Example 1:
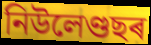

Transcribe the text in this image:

নিউলেণ্ডছৰ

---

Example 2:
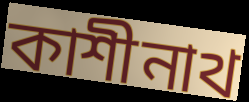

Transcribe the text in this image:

কাশীনাথ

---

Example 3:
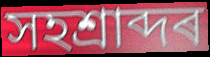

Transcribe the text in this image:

সহশ্ৰাব্দৰ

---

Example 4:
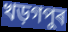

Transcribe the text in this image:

খড়গপুৰ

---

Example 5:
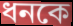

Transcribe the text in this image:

ধনকে